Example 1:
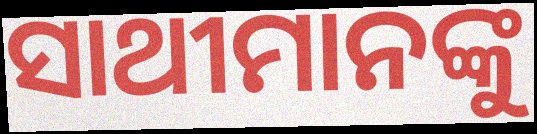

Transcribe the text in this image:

ସାଥୀମାନଙ୍କୁ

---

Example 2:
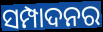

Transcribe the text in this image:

ସମ୍ପାଦନର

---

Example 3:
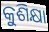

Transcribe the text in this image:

କୁଶିକ୍ଷା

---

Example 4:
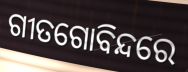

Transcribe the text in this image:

ଗୀତଗୋବିନ୍ଦରେ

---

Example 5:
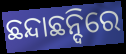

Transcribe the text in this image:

ଛନ୍ଦାଛନ୍ଦିରେ